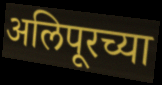
अलिपूरच्या